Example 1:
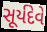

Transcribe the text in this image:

સૂર્યદેવે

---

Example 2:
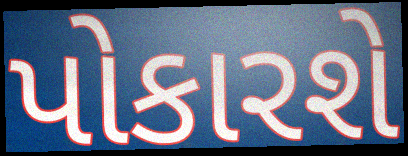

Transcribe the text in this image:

પોકારશે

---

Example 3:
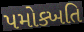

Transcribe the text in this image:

પમોક્ખતિ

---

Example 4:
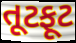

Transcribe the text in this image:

તૂટફૂટ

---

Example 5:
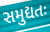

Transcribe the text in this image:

સમુદ્યતઃ